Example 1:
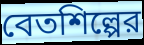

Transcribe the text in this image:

বেতশিল্পের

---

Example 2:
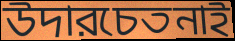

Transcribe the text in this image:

উদারচেতনাই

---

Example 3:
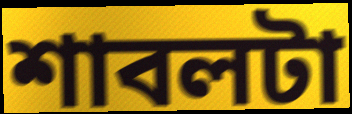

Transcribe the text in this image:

শাবলটা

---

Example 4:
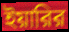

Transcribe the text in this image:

ইয়ারির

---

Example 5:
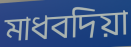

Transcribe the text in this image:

মাধবদিয়া